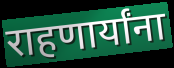
राहणार्यांना